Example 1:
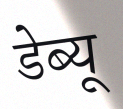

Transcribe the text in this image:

डेब्यू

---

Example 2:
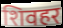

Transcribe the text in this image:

शिवहर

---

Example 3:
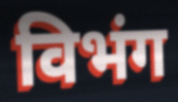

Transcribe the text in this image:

विभंग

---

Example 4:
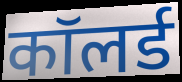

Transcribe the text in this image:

कॉलर्ड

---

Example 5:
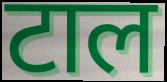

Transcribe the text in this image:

टाल